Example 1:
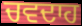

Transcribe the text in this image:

ਚਵਦਾਹ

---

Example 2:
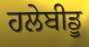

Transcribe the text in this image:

ਹਲੇਬੀਡੂ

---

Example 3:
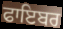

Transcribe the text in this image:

ਫਾਇਬਰ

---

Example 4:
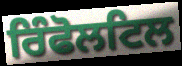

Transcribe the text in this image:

ਰਿੰਫੋਲਟਿਲ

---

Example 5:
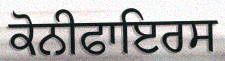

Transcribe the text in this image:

ਕੋਨੀਫਾਇਰਸ